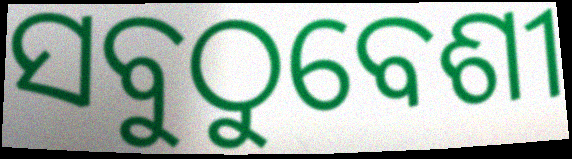
ସବୁଠୁବେଶୀ